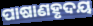
ପାଷାଣହୃଦୟ